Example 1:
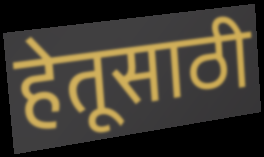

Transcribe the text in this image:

हेतूसाठी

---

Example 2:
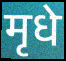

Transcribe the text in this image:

मृधे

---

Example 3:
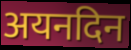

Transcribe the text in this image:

अयनदिन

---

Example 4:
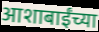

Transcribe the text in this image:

आशाबाईंच्या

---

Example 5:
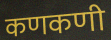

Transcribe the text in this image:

कणकणी